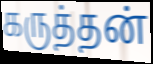
கருத்தன்